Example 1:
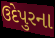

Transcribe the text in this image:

ઉદેપુરના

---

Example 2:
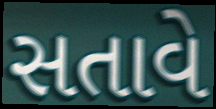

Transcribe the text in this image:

સતાવે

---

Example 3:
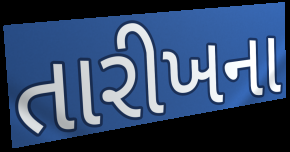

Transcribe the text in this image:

તારીખના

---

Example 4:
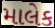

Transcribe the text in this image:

માલેક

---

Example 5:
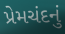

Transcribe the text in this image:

પ્રેમચંદનું